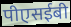
पीएसईबी